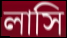
লাসি